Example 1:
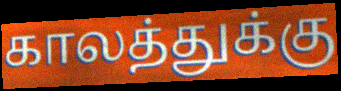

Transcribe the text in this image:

காலத்துக்கு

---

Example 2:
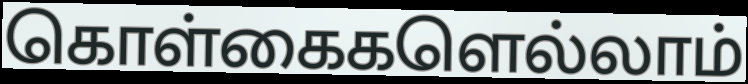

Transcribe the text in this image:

கொள்கைகளெல்லாம்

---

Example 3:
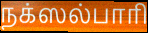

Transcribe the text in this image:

நக்ஸல்பாரி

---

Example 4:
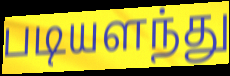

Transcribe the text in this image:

படியளந்து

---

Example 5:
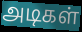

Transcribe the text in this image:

அடிகள்